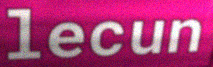
lecun